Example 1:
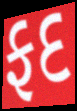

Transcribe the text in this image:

ફદ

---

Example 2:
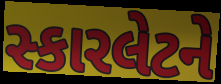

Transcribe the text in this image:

સ્કારલેટને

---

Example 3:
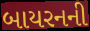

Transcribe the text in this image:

બાયરનની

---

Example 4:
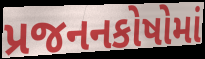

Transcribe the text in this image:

પ્રજનનકોષોમાં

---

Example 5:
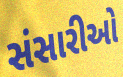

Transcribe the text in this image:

સંસારીઓ